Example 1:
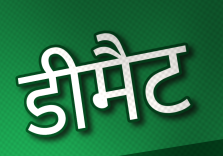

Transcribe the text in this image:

डीमैट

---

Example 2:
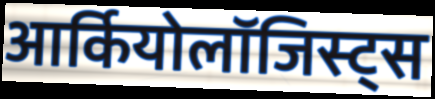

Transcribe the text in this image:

आर्कियोलॉजिस्ट्स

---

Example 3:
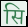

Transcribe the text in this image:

सि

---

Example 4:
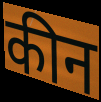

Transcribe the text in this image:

कीन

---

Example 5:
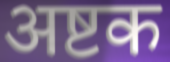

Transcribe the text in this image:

अष्टक